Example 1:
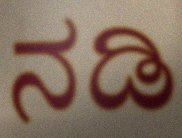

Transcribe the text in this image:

ನಡಿ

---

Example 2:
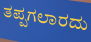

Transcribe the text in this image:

ತಪ್ಪಗಲಾರದು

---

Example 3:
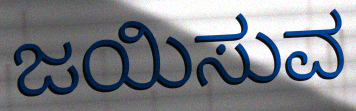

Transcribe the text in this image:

ಜಯಿಸುವ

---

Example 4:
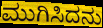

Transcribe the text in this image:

ಮುಗಿಸಿದನು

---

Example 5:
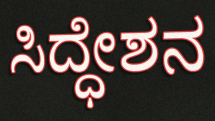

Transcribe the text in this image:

ಸಿದ್ಧೇಶನ